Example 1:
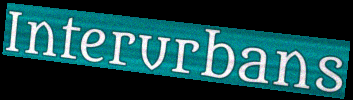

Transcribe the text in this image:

Interurbans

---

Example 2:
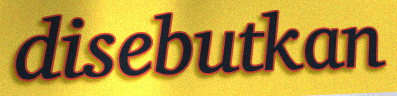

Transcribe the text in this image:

disebutkan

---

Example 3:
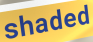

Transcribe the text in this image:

shaded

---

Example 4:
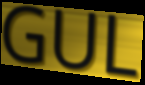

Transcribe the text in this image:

GUL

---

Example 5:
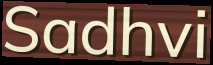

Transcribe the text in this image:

Sadhvi